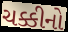
ચક્કીનો